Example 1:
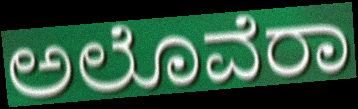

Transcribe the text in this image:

ಅಲೊವೆರಾ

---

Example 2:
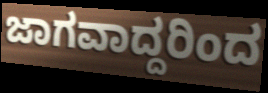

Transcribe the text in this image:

ಜಾಗವಾದ್ದರಿಂದ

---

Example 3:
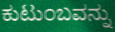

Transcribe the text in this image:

ಕುಟುಂಬವನ್ನು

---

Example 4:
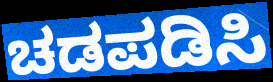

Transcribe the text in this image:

ಚಡಪಡಿಸಿ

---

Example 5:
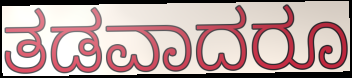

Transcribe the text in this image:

ತಡವಾದರೂ